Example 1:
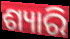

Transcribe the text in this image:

ଶ୍ୟାରି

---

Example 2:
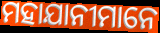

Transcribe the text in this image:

ମହାଯାନୀମାନେ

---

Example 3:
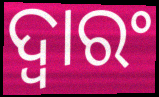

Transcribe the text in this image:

ଦ୍ୱାରଂ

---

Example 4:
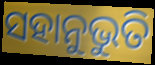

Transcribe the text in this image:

ସହାନୁଭୁତି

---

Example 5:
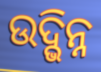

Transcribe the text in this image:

ଉଦ୍ଭିନ୍ନ